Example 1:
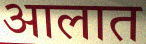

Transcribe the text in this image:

आलात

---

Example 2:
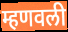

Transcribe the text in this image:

म्हणवली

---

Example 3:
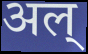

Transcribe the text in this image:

अल्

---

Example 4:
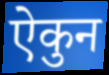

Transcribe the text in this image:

ऐकुन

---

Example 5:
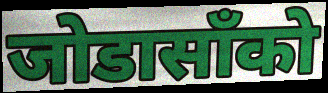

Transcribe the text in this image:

जोडासाँको